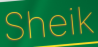
Sheik